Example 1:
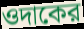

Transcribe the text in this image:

ওদাকের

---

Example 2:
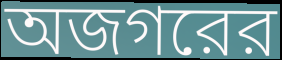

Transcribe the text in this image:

অজগরের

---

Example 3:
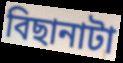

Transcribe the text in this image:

বিছানাটা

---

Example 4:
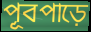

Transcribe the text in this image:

পূবপাড়ে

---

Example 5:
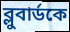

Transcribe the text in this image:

ব্লুবার্ডকে